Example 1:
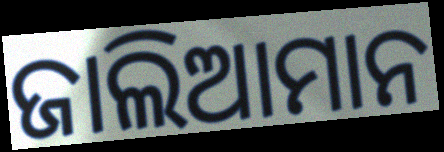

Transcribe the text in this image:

ଜାଲିଆମାନ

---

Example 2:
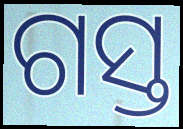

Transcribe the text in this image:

ଗସ୍ତ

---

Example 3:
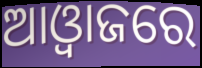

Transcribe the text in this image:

ଆଓ୍ୱାଜରେ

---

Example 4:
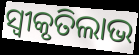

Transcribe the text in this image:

ସ୍ଵୀକୃତିଲାଭ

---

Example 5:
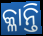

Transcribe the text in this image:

କ୍ଳାନ୍ତି